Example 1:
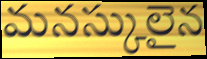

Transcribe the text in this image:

మనస్కులైన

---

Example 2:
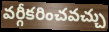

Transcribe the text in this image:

వర్గీకరించవచ్చు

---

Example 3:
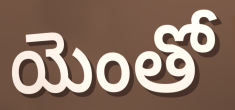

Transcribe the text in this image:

యెంతో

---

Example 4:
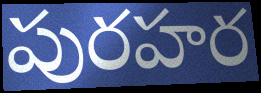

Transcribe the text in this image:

పురహర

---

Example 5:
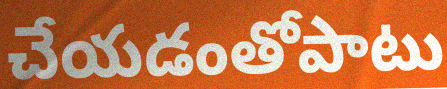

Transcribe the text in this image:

చేయడంతోపాటు